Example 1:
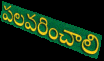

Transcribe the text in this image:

పలవరించాలి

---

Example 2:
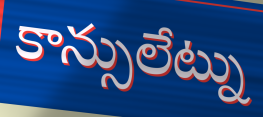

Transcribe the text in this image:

కాన్సులేట్ను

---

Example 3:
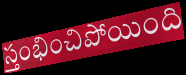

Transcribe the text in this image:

స్తంభించిపోయింది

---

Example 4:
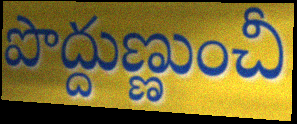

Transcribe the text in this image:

పొద్దుణ్ణుంచీ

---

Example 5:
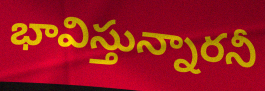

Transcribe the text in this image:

భావిస్తున్నారనీ